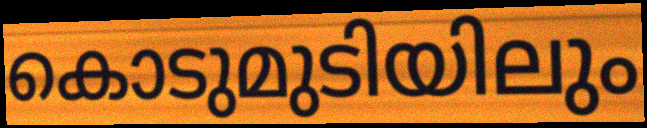
കൊടുമുടിയിലും